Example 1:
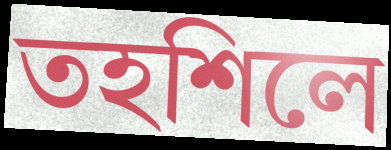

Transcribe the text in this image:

তহশিলে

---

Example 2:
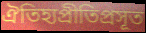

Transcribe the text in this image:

ঐতিহ্যপ্রীতিপ্রসূত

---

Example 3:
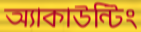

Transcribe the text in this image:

অ্যাকাউন্টিং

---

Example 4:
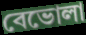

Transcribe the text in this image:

বেভোলা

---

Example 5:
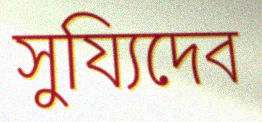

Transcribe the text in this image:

সুয্যিদেব